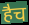
हैच